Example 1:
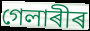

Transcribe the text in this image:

গেলাৰীৰ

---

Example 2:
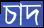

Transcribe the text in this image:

চাদ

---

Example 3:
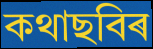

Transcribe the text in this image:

কথাছবিৰ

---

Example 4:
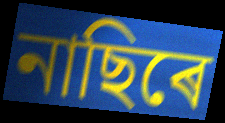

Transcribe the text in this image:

নাছিৰে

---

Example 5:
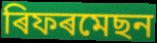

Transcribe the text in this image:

ৰিফৰমেছন